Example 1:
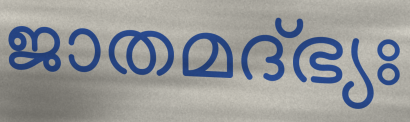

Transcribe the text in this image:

ജാതമദ്ഭ്യഃ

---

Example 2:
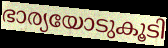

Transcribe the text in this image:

ഭാര്യയോടുകൂടി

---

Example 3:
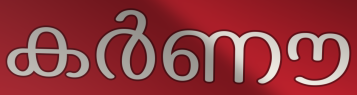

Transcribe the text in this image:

കർണൗ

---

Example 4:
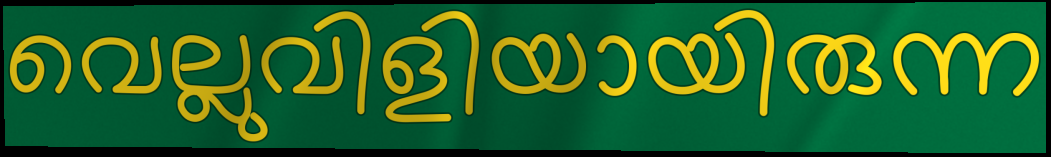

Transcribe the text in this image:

വെല്ലുവിളിയായിരുന്ന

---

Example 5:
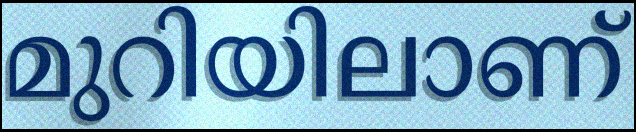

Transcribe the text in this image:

മുറിയിലാണ്